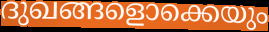
ദുഖങ്ങളൊക്കെയും